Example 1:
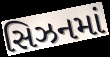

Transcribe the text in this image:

સિઝનમાં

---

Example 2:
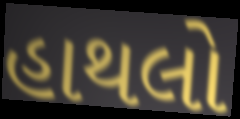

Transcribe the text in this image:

હાથલો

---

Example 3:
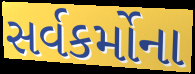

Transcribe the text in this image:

સર્વકર્મોના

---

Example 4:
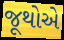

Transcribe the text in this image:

જૂથોએ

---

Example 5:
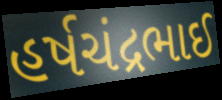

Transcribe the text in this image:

હર્ષચંદ્રભાઈ